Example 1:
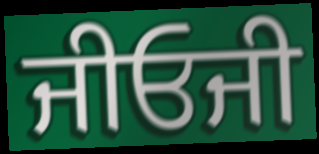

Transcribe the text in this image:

ਜੀਓਜੀ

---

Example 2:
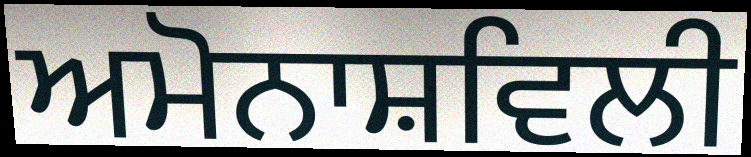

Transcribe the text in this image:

ਅਮੋਨਾਸ਼ਵਿਲੀ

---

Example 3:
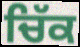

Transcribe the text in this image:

ਚਿੱਕ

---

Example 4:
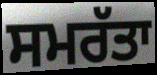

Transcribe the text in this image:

ਸਮਰੱਤਾ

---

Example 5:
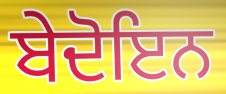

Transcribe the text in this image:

ਬੇਦੋਇਨ